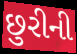
છુરીની